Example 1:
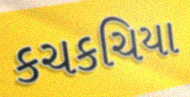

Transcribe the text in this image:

કચકચિયા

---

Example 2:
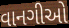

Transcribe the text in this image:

વાનગીઓ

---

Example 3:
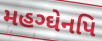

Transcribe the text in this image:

મહગ્ઘેનપિ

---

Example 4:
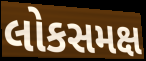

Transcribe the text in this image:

લોકસમક્ષ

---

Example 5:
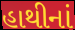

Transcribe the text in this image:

હાથીનાં